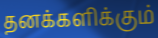
தனக்களிக்கும்